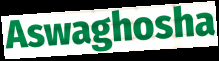
Aswaghosha